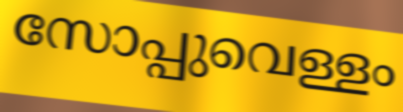
സോപ്പുവെള്ളം